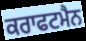
ਕਰਾਫਟਮੈਨ